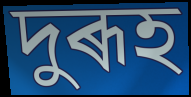
দুৰূহ